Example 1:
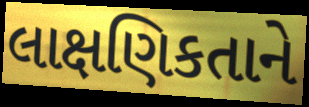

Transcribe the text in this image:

લાક્ષણિકતાને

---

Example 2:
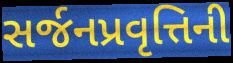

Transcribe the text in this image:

સર્જનપ્રવૃત્તિની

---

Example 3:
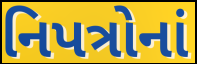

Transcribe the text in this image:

નિપત્રોનાં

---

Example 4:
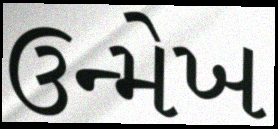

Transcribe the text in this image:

ઉન્મેખ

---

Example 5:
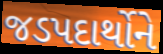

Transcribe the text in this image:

જડપદાર્થોને